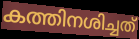
കത്തിനശിച്ചത്